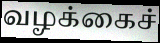
வழக்கைச்